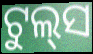
ଟୁଲ୍‌ସ